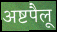
अष्टपैलू